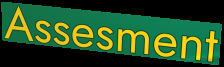
Assesment